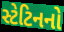
સ્ટેટિનનો